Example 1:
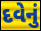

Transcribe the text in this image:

દવેનું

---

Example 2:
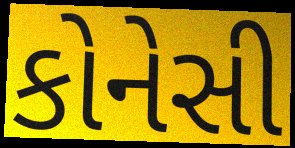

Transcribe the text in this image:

કોનેસી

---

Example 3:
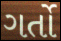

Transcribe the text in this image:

ગર્તો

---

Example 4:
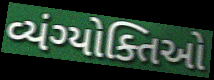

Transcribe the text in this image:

વ્યંગ્યોક્તિઓ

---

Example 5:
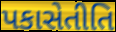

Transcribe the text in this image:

પકાસેતીતિ